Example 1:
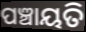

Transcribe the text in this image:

ପଞ୍ଚାୟତି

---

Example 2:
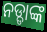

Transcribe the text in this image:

ନଡ୍ଡାଙ୍କ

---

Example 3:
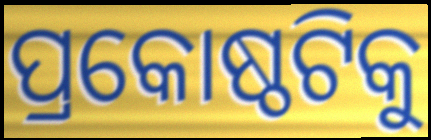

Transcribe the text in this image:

ପ୍ରକୋଷ୍ଠଟିକୁ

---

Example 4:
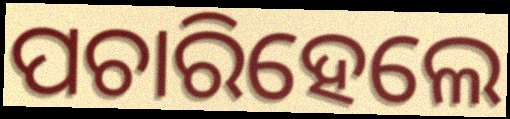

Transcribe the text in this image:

ପଚାରିହେଲେ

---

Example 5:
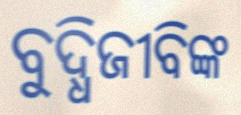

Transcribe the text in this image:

ବୁଦ୍ଧିଜୀବିଙ୍କ